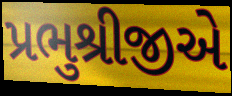
પ્રભુશ્રીજીએ